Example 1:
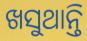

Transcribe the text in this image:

ଖସୁଥାନ୍ତି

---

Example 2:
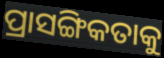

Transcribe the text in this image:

ପ୍ରାସଙ୍ଗିକତାକୁ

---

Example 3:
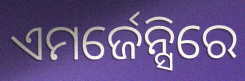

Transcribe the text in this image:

ଏମର୍ଜେନ୍ସିରେ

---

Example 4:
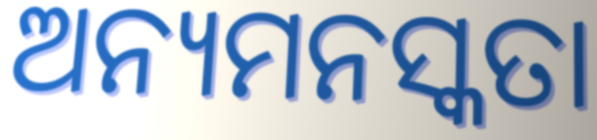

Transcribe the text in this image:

ଅନ୍ୟମନସ୍କତା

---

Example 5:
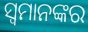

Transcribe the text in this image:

ସ୍ୱମାନଙ୍କର